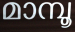
മാമ്പൂ